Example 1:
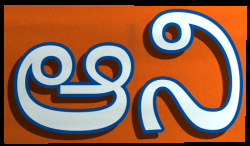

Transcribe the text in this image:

ఆని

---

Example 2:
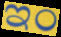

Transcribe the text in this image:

ఇం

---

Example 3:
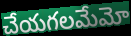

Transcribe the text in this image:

చేయగలమేమో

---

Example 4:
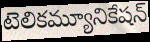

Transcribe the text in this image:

టెలికమ్యూనికేషన్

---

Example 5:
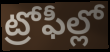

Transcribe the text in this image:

ట్రోఫీల్లో